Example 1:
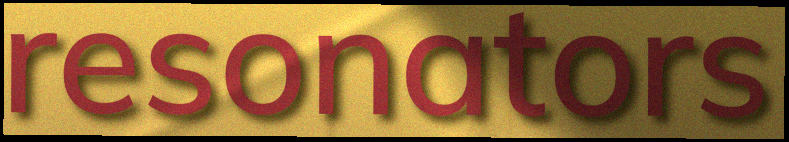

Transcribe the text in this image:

resonators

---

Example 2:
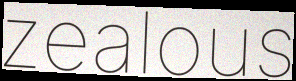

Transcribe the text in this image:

zealous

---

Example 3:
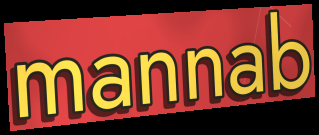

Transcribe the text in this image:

mannab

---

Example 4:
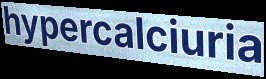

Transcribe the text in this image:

hypercalciuria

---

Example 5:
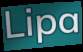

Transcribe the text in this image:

Lipa